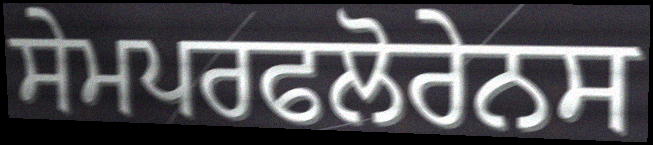
ਸੇਮਪਰਫਲੋਰੇਨਸ